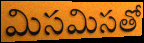
మిసమిసతో